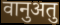
वानुअतु